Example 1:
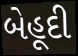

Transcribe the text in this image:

બેહૂદી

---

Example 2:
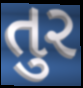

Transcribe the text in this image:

તુર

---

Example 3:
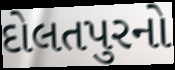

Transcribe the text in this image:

દોલતપુરનો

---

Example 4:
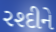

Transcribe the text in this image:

રશ્દીને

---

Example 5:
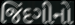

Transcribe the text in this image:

જિંદગીનો